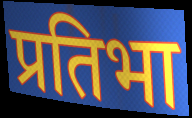
प्रतिभा